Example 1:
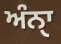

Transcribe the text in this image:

ਅੰਨੑਾ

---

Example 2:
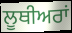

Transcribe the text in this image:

ਲੂਥੀਅਰਾਂ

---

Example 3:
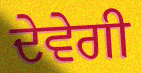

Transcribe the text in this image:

ਦੇਵੇਗੀ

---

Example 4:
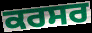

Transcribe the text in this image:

ਕਰਸਰ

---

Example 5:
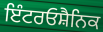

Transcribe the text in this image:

ਇੰਟਰਓਸ਼ੈਨਿਕ